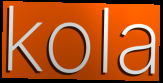
kola